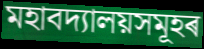
মহাবদ্যালয়সমূহৰ